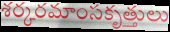
శర్కరమాంసకృత్తులు